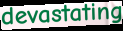
devastating